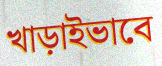
খাড়াইভাবে